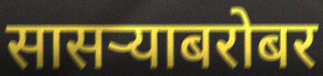
सासऱ्याबरोबर